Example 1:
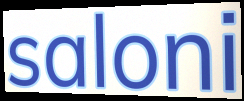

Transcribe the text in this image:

saloni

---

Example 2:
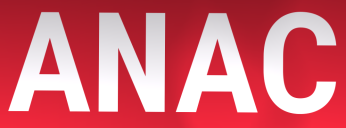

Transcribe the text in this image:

ANAC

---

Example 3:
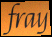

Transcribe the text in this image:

fray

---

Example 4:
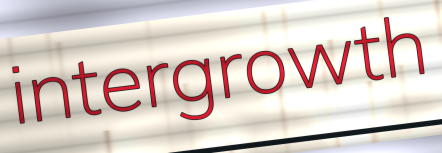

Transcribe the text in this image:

intergrowth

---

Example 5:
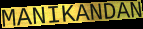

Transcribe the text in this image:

MANIKANDAN